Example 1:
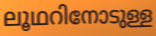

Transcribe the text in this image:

ലൂഥറിനോടുള്ള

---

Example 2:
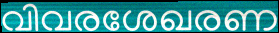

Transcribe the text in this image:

വിവരശേഖരണ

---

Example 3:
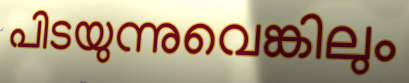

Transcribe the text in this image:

പിടയുന്നുവെങ്കിലും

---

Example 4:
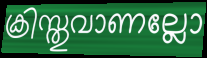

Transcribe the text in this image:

ക്രിസ്തുവാണല്ലോ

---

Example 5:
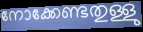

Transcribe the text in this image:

നോക്കേണ്ടതുള്ളു